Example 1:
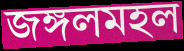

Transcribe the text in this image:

জঙ্গলমহল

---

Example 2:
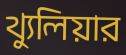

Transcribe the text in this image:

থ্যুলিয়ার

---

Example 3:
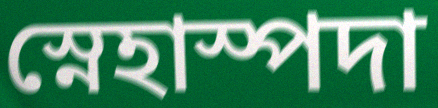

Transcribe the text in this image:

স্নেহাস্পদা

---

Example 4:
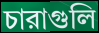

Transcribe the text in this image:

চারাগুলি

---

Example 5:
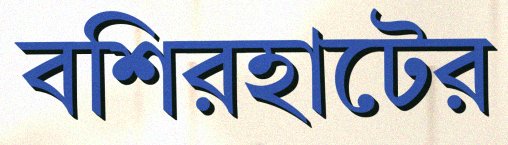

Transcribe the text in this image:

বশিরহাটের